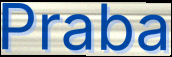
Praba